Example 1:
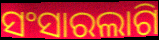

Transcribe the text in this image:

ସଂସାରଲାଗି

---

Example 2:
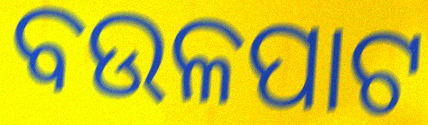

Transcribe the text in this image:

ବଉଳପାଟ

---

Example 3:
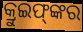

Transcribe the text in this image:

କ୍ରୁଇଫ୍‌ଙ୍କର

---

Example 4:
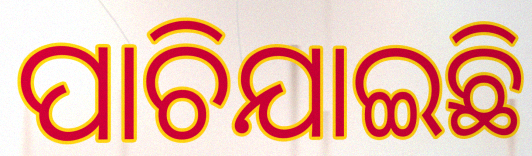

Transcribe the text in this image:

ପାଚିଯାଇଛି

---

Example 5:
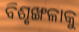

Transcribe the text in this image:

ବିଶୃଙ୍ଖଳାକୁ